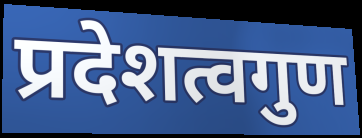
प्रदेशत्वगुण